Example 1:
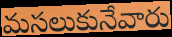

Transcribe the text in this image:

మసలుకునేవారు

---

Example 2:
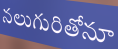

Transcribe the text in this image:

నలుగురితోనూ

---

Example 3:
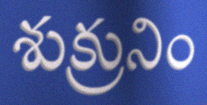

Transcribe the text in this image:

శుక్రునిం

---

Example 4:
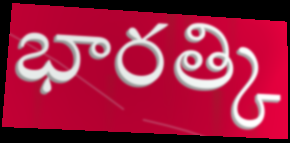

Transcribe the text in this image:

భారత్కి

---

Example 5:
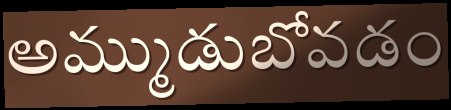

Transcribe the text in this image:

అమ్ముడుబోవడం